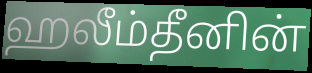
ஹலீம்தீனின்